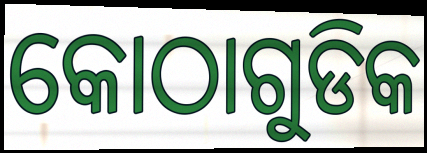
କୋଠାଗୁଡିକ